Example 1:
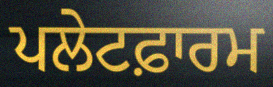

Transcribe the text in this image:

ਪਲੇਟਫ਼ਾਰਮ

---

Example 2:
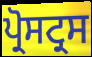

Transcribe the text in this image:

ਪ੍ਰੋਸਟ੍ਰਸ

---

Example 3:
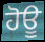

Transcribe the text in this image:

ਹੋਊ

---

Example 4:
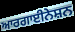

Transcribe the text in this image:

ਆਰਗਾਈਨੇਸ਼ਨ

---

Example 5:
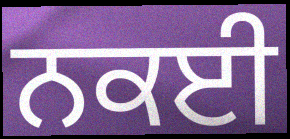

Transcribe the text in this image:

ਨਕਈ